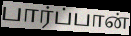
பார்ப்பான்